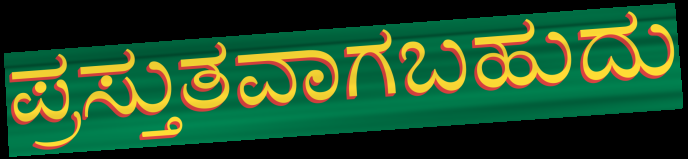
ಪ್ರಸ್ತುತವಾಗಬಹುದು